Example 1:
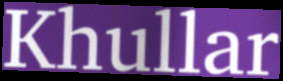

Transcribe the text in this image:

Khullar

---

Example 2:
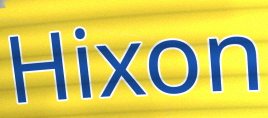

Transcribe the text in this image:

Hixon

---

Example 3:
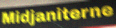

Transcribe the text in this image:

Midjaniterne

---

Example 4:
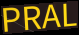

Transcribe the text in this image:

PRAL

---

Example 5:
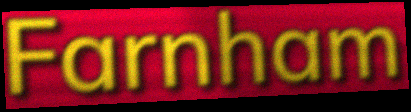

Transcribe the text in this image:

Farnham